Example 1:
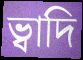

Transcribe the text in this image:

ভ্বাদি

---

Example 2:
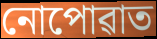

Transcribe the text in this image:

নোপোৱাত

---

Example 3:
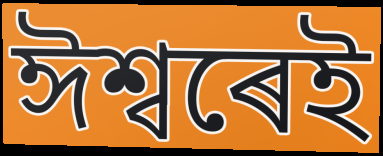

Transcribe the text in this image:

ঈশ্বৰেই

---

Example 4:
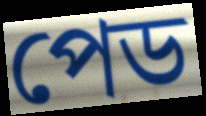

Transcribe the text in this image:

পেড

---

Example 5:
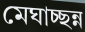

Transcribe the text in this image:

মেঘাচ্ছন্ন